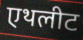
एथलीट